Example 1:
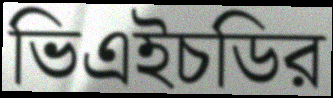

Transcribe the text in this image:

ভিএইচডির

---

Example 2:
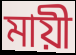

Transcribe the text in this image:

মায়ী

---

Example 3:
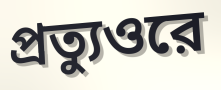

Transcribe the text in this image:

প্রত্যুওরে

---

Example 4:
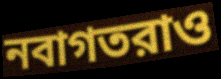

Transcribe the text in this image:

নবাগতরাও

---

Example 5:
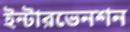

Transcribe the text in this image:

ইন্টারভেনশন